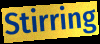
Stirring